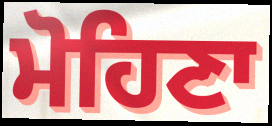
ਮੋਹਿਣਾ